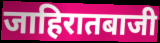
जाहिरातबाजी